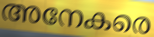
അനേകരെ